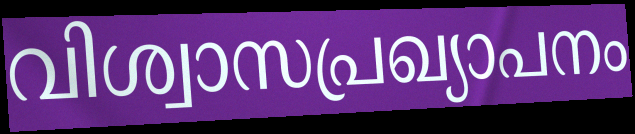
വിശ്വാസപ്രഖ്യാപനം